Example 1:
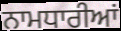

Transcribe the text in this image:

ਨਾਮਧਾਰੀਆਂ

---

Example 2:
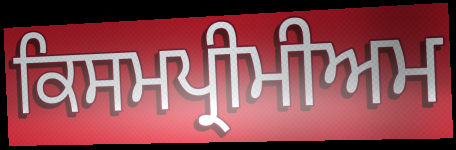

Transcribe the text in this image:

ਕਿਸਮਪ੍ਰੀਮੀਅਮ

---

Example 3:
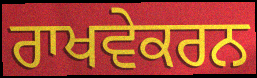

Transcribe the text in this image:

ਰਾਖਵੇਕਰਨ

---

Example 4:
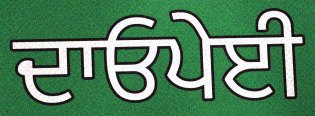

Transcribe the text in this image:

ਦਾਓਪੇਈ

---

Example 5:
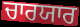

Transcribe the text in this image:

ਚਾਰਯਾਰ